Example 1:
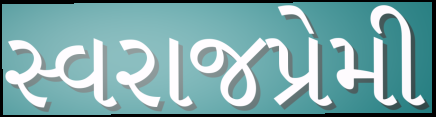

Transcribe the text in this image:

સ્વરાજપ્રેમી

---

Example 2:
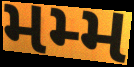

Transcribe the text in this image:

મમ્મ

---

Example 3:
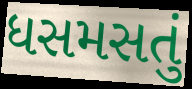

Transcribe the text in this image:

ધસમસતું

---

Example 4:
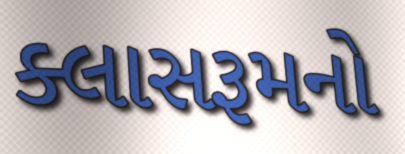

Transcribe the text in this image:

ક્લાસરૂમનો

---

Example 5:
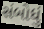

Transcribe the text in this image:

સંબોધું